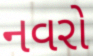
નવરો